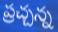
ప్రచ్చన్న